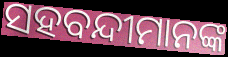
ସହବନ୍ଦୀମାନଙ୍କ